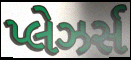
પ્લેઝર્સ